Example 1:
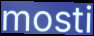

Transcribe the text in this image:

mosti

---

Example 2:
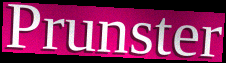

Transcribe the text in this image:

Prunster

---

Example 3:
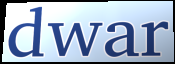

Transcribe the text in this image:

dwar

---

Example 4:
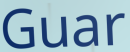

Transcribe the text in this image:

Guar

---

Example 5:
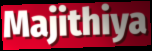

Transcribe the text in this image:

Majithiya